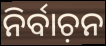
ନିର୍ବାଚ଼ନ